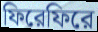
ফিরেফিরে